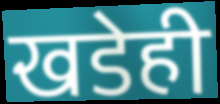
खडेही